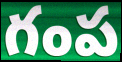
గంప